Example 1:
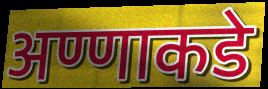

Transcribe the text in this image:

अण्णाकडे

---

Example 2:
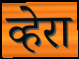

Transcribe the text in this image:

व्हेरा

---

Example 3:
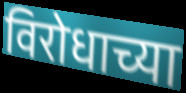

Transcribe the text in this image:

विरोधाच्या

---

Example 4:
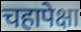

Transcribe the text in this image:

चहापेक्षा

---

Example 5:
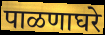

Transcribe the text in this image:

पाळणाघरे